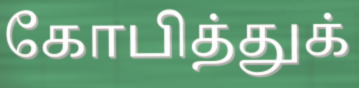
கோபித்துக்